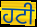
ਹਟੀ